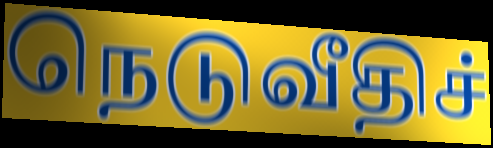
நெடுவீதிச்